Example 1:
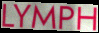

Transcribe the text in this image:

LYMPH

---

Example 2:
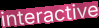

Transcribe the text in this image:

interactive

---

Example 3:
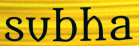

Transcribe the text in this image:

subha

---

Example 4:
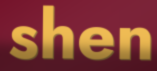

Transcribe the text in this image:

shen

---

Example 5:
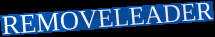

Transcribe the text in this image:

REMOVELEADER